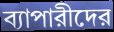
ব্যাপারীদের